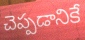
చెప్పడానికే